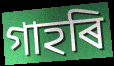
গাহৰি